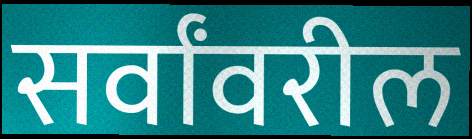
सर्वांवरील